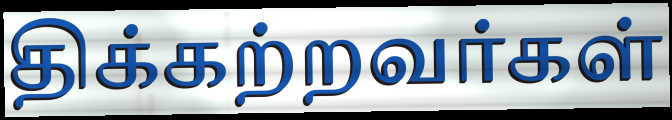
திக்கற்றவர்கள்